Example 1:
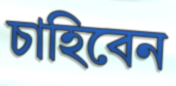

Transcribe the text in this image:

চাহিবেন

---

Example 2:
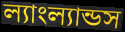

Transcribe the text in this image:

ল্যাংল্যান্ডস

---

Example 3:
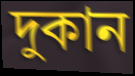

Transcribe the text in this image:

দুকান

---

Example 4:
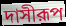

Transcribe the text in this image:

দাসীরূপ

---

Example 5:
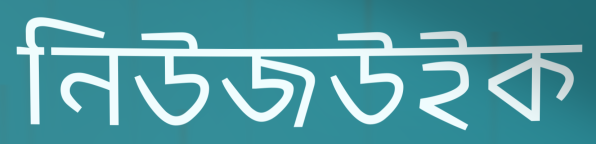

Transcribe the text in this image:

নিউজউইক